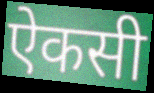
ऐकसी